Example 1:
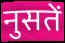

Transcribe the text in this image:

नुसतें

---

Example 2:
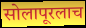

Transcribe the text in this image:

सोलापूरलाच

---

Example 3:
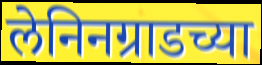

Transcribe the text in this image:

लेनिनग्राडच्या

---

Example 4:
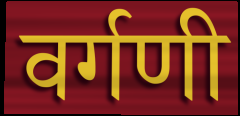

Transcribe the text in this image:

वर्गणी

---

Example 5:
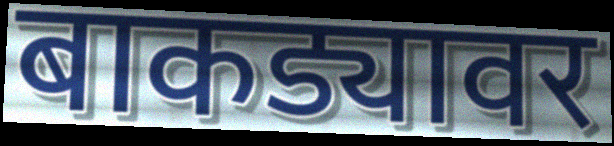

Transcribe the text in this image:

बाकड्यावर